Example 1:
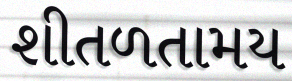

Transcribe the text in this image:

શીતળતામય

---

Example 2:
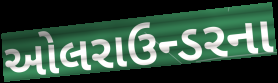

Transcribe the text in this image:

ઓલરાઉન્ડરના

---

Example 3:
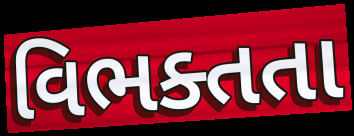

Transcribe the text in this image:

વિભક્તતા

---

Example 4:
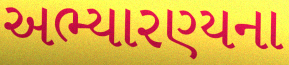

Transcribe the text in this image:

અભ્યારણ્યના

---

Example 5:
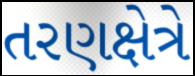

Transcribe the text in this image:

તરણક્ષેત્રે